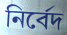
নির্বেদ